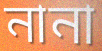
নানা